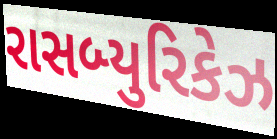
રાસબ્યુરિકેઝ